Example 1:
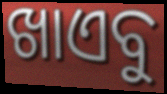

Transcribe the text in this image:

ଖାଏବୁ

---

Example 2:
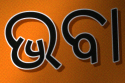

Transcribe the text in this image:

ଭବା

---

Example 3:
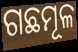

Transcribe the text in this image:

ଗଛମୂଳ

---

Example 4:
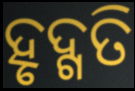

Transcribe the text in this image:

ହୃଦ୍ଗତି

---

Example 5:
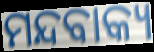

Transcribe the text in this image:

ମନ୍ଦବାକ୍ୟ